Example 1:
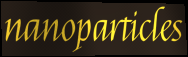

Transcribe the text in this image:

nanoparticles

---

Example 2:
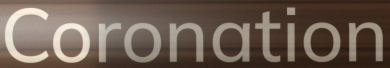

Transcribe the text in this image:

Coronation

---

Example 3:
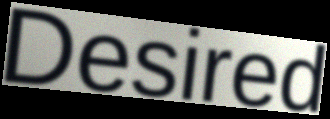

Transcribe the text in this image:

Desired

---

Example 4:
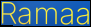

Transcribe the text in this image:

Ramaa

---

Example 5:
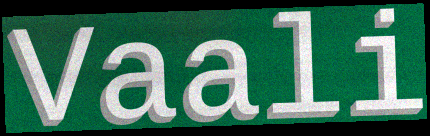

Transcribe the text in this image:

Vaali